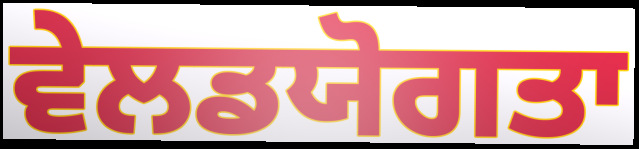
ਵੇਲਡਯੋਗਤਾ